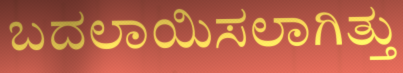
ಬದಲಾಯಿಸಲಾಗಿತ್ತು